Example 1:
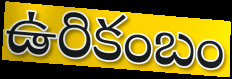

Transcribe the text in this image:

ఉరికంబం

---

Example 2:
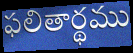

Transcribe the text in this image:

ఫలితార్థము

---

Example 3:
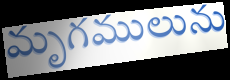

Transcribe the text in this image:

మృగములును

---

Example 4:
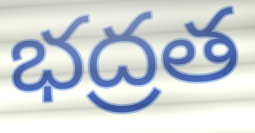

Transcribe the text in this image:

భద్రత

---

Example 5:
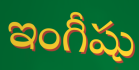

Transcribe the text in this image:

ఇంగీషు